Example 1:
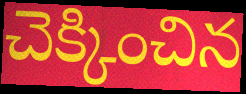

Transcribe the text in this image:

చెక్కించిన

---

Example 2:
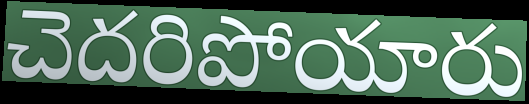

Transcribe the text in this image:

చెదరిపోయారు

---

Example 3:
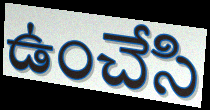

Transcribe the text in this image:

ఉంచేసి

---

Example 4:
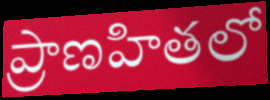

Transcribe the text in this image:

ప్రాణహితలో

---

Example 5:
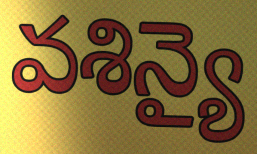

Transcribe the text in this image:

వశిన్యై